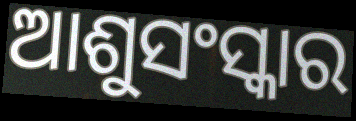
ଆଶୁସଂସ୍କାର